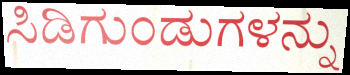
ಸಿಡಿಗುಂಡುಗಳನ್ನು